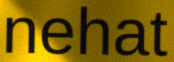
nehat